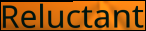
Reluctant